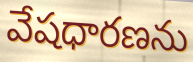
వేషధారణను